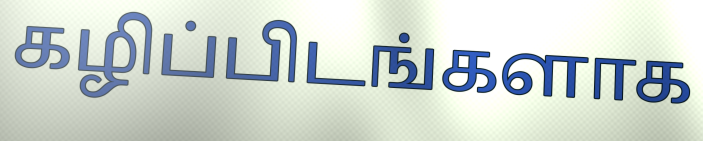
கழிப்பிடங்களாக